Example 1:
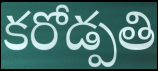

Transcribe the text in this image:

కరోడ్పతి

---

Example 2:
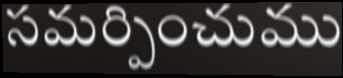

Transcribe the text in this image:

సమర్పించుము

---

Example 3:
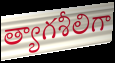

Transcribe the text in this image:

త్యాగశీలిగా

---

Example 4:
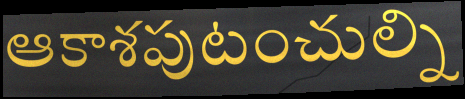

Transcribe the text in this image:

ఆకాశపుటంచుల్ని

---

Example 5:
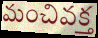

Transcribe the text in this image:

మంచివక్త